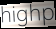
highp